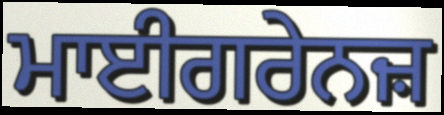
ਮਾਈਗਰੇਨਜ਼